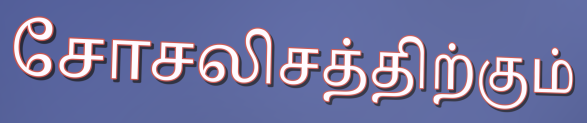
சோசலிசத்திற்கும்